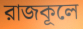
রাজকূলে